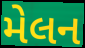
મેલન